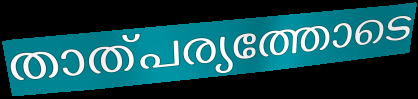
താത്പര്യത്തോടെ